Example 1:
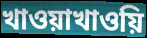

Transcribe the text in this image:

খাওয়াখাওয়ি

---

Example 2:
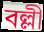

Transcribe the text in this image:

বল্লী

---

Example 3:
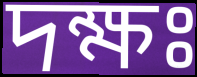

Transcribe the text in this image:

দক্ষঃ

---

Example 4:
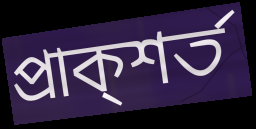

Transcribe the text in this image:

প্রাক্‌শর্ত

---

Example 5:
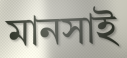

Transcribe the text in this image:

মানসাই